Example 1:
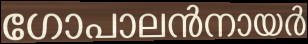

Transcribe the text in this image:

ഗോപാലൻനായർ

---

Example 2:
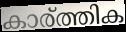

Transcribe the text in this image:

കാര്ത്തിക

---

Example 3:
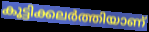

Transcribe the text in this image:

കൂട്ടിക്കലർത്തിയാണ്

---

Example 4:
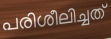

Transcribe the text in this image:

പരിശീലിച്ചത്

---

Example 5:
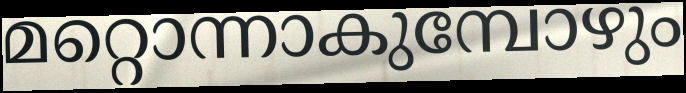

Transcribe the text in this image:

മറ്റൊന്നാകുമ്പോഴും